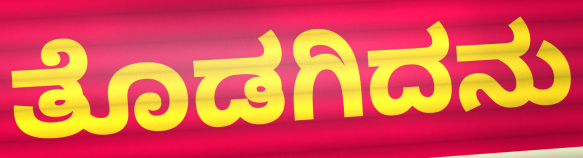
ತೊಡಗಿದನು